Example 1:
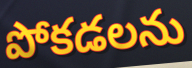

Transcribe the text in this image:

పోకడలను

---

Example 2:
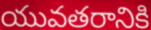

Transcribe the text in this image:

యువతరానికి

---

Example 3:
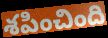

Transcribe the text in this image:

శపించింది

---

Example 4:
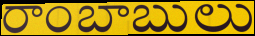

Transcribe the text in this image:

రాంబాబులు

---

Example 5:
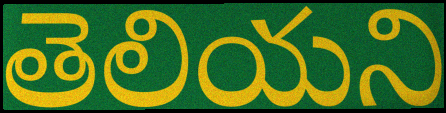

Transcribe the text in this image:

తెలియని